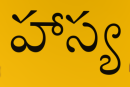
హాస్య